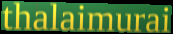
thalaimurai